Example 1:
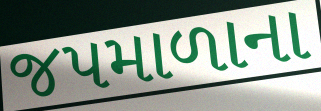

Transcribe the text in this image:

જપમાળાના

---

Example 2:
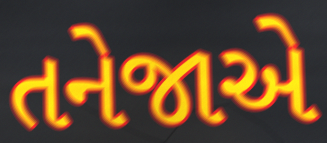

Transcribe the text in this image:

તનેજાએ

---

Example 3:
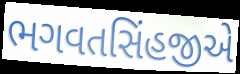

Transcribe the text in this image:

ભગવતસિંહજીએ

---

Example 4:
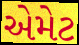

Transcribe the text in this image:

એમેટ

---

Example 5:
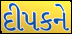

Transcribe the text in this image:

દીપકને